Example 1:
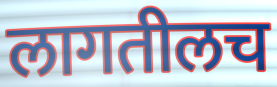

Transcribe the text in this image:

लागतीलच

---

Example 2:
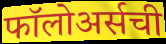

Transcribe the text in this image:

फॉलोअर्सची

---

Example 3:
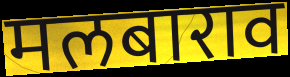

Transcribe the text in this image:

मलबाराव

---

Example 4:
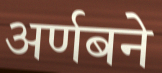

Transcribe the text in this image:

अर्णबने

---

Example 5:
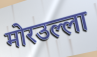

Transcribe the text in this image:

मोरउल्ला